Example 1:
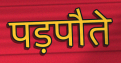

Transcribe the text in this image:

पड़पौते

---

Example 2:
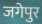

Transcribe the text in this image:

जगेपुर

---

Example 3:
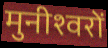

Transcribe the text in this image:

मुनीश्वरों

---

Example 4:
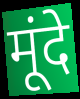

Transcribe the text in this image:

मूंदे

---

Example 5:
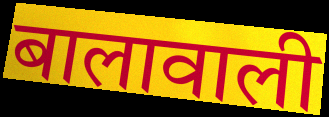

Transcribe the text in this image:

बालावाली